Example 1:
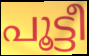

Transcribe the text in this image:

പൂട്ടീ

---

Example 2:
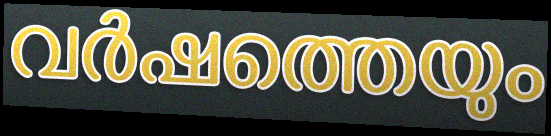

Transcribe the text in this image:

വർഷത്തെയും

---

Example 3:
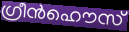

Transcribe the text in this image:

ഗ്രീൻഹൌസ്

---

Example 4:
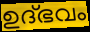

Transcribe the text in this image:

ഉദ്ഭവം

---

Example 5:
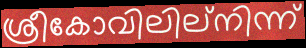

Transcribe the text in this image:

ശ്രീകോവിലില്നിന്ന്